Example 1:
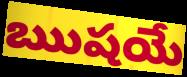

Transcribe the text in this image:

ఋషయే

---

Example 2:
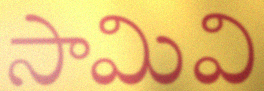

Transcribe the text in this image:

సామివి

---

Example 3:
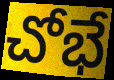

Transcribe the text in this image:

చోభే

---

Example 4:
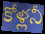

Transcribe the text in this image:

కోళ్లనీ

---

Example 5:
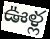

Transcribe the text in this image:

ఊళ్ల